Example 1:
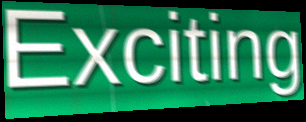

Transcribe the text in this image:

Exciting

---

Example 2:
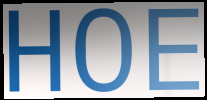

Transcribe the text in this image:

HOE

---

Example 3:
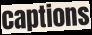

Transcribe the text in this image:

captions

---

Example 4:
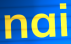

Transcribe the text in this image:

nai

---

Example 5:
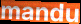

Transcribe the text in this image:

mandu